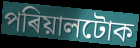
পৰিয়ালটোক